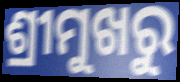
ଶ୍ରୀମୁଖରୁ